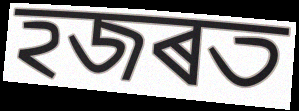
হজৰত